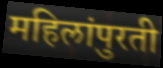
महिलांपुरती